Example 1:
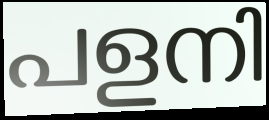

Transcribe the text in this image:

പളനി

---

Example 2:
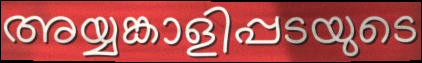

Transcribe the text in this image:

അയ്യങ്കാളിപ്പടയുടെ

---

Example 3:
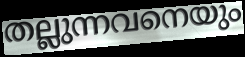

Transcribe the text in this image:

തല്ലുന്നവനെയും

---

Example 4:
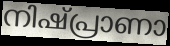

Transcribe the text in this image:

നിഷ്പ്രാണാ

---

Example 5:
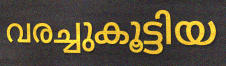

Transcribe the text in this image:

വരച്ചുകൂട്ടിയ